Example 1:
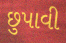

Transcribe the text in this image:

છુપાવી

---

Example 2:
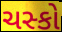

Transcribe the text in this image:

ચસ્કો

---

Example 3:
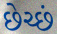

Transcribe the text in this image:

છેચ્છં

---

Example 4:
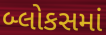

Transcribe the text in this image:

બ્લોકસમાં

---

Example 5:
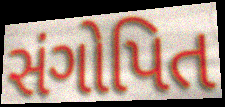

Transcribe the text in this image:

સંગોપિત